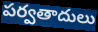
పర్వతాదులు